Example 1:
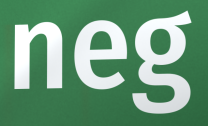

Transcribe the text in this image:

neg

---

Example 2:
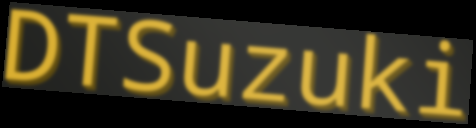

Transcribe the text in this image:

DTSuzuki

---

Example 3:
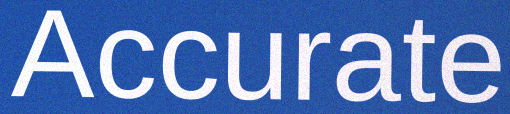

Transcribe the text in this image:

Accurate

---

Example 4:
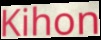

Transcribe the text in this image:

Kihon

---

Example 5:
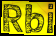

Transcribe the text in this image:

Rbi